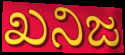
ಖನಿಜ